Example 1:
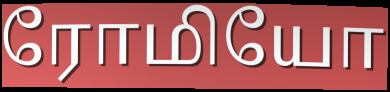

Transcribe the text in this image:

ரோமியோ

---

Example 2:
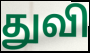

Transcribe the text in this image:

துவி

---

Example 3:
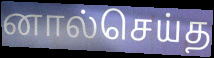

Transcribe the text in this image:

னால்செய்த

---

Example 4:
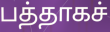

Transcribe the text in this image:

பத்தாகச்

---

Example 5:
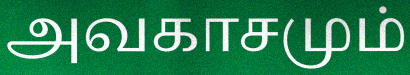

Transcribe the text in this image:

அவகாசமும்